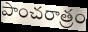
పాంచరాత్రం